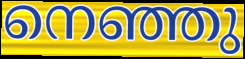
നെഞ്ഞു